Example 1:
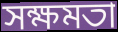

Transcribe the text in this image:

সক্ষমতা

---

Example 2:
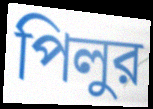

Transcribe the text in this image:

পিলুর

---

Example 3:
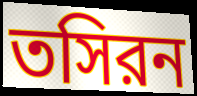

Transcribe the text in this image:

তসিরন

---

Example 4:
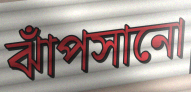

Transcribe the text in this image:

ঝাঁপসানো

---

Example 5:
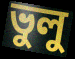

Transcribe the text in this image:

ভুলু